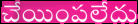
చేయింపలేదు